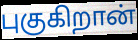
புகுகிறான்